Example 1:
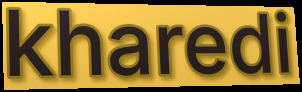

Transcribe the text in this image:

kharedi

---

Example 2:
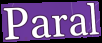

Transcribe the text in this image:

Paral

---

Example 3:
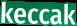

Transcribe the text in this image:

keccak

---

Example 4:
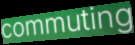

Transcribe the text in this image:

commuting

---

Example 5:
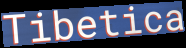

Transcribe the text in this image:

Tibetica